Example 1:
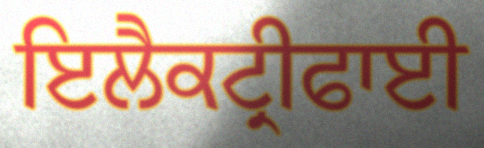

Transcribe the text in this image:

ਇਲੈਕਟ੍ਰੀਫਾਈ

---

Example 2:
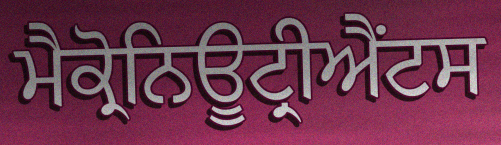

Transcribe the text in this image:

ਮੈਕ੍ਰੋਨਿਊਟ੍ਰੀਐਂਟਸ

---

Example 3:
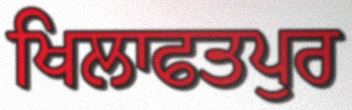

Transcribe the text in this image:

ਖਿਲਾਫਤਪੁਰ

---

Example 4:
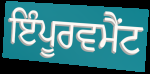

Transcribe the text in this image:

ਇੰਪੂਰਵਮੈਂਟ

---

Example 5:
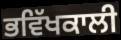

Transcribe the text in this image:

ਭਵਿੱਖਕਾਲੀ